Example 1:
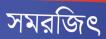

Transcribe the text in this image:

সমরজিৎ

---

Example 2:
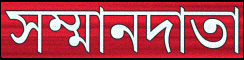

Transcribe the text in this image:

সম্মানদাতা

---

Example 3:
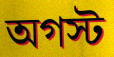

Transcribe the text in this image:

অগস্ট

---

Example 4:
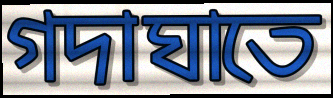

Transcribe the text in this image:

গদাঘাতে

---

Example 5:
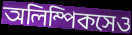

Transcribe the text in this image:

অলিম্পিকসেও